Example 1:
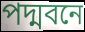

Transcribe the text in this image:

পদ্মবনে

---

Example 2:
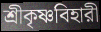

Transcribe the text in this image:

শ্রীকৃষ্ণবিহারী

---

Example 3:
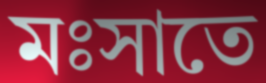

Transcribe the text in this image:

মঃসাতে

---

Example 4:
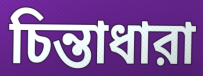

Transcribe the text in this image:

চিন্তাধারা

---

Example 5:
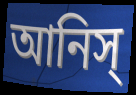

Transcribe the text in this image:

আনিস্